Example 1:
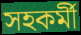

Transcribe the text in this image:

সহকৰ্মী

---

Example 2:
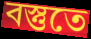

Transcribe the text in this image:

বস্তুতে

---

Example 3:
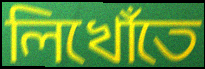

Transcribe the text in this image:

লিখোঁতে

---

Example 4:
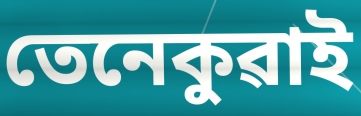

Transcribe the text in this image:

তেনেকুৱাই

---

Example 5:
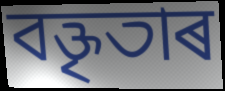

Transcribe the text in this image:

বক্তৃতাৰ